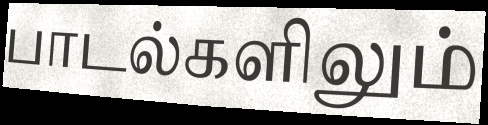
பாடல்களிலும்